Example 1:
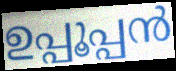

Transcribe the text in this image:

ഉപ്പൂപ്പൻ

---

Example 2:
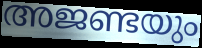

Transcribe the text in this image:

അജണ്ടയും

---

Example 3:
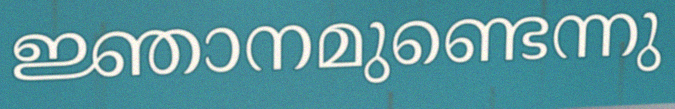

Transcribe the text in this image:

ജ്ഞാനമുണ്ടെന്നു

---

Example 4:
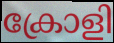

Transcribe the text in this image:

ക്രോളി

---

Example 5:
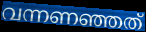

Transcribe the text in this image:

വന്നണഞ്ഞത്